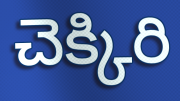
చెక్కిరి